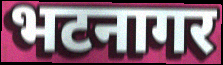
भटनागर